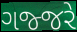
ગજ્જરે